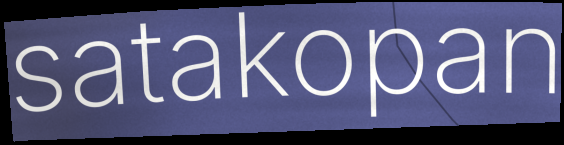
satakopan